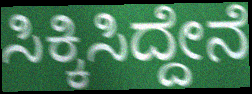
ಸಿಕ್ಕಿಸಿದ್ದೇನೆ